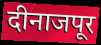
दीनाजपूर